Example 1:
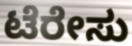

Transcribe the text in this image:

ಟೆರೇಸು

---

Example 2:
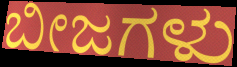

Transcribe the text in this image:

ಬೀಜಗಳು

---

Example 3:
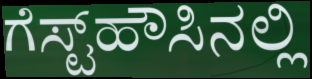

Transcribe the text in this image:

ಗೆಸ್ಟ್‌ಹೌಸಿನಲ್ಲಿ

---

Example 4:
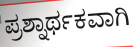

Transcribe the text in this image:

ಪ್ರಶ್ನಾರ್ಥಕವಾಗಿ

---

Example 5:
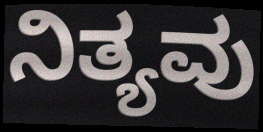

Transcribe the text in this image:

ನಿತ್ಯವು